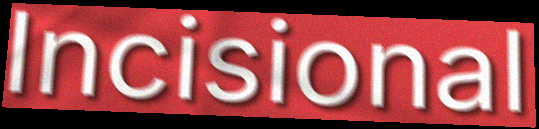
Incisional